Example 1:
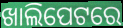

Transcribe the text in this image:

ଖାଲିପେଟରେ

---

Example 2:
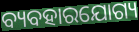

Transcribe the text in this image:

ବ୍ୟବହାରଯୋଗ୍ୟ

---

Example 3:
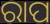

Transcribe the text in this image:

ରାପ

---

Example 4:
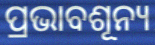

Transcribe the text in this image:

ପ୍ରଭାବଶୂନ୍ୟ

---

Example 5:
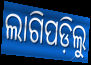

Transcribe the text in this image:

ଲାଗିପଡ଼ିଲୁ